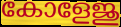
കോളേജു